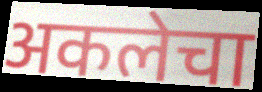
अकलेचा